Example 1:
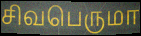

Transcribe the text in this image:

சிவபெருமா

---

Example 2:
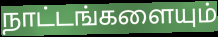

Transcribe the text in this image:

நாட்டங்களையும்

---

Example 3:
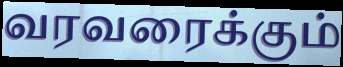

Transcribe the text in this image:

வரவரைக்கும்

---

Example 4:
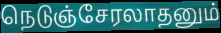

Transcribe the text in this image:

நெடுஞ்சேரலாதனும்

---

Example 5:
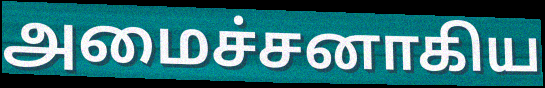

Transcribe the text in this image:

அமைச்சனாகிய